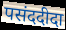
पसंददीदा